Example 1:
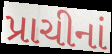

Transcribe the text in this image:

પ્રાચીનાં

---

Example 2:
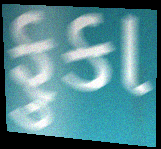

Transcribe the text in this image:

ફુકા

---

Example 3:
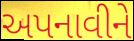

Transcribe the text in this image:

અપનાવીને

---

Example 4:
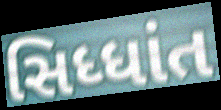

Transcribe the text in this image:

સિધ્ધાંત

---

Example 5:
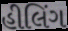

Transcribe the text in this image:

હીલિંગ